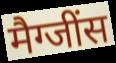
मैग्जींस